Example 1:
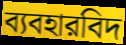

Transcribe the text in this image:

ব্যবহারবিদ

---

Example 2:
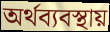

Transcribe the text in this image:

অর্থব্যবস্থায়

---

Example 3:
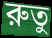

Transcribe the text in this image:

রুতু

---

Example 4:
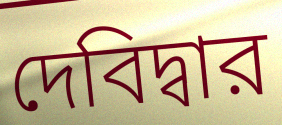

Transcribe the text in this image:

দেবিদ্বার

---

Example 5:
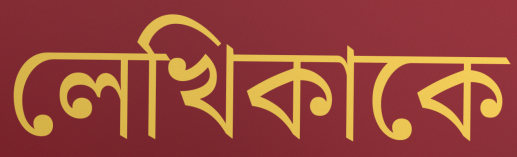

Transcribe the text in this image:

লেখিকাকে